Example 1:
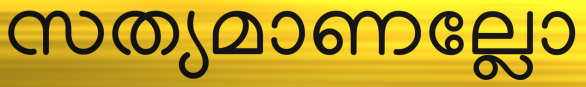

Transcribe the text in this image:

സത്യമാണല്ലോ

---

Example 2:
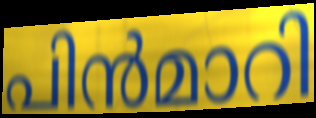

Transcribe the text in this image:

പിൻമാറി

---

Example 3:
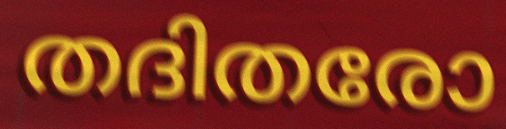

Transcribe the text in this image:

തദിതരോ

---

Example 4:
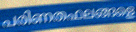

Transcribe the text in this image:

പരിണതഫലങ്ങളെ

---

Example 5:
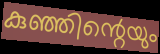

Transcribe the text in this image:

കുഞ്ഞിന്റെയും